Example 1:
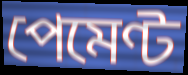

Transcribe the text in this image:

পেমেণ্ট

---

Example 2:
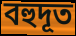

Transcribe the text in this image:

বহুদূত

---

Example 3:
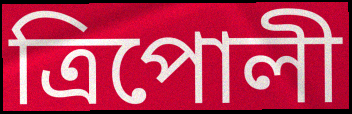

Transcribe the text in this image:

ত্রিপোলী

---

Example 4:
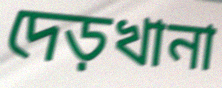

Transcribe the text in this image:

দেড়খানা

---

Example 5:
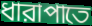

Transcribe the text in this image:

ধারাপাতে